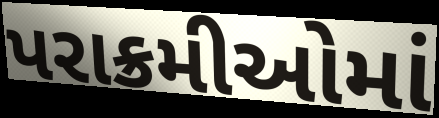
પરાક્રમીઓમાં